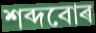
শব্দবোৰ